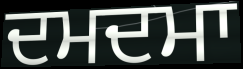
ਦਮਦਮਾ